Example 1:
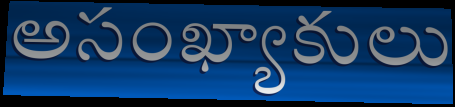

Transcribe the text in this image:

అసంఖ్యాకులు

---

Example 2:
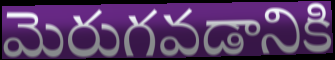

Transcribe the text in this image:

మెరుగవడానికి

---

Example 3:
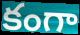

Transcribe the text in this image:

కంగా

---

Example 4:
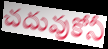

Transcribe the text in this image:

చదువుకోనీ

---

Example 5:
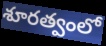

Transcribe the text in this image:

శూరత్వంలో